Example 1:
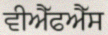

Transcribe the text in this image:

ਵੀਐੱਫਐੱਸ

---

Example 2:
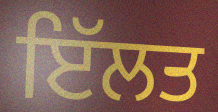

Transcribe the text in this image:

ਇੱਲਤ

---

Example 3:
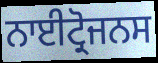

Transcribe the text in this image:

ਨਾਈਟ੍ਰੋਜਨਸ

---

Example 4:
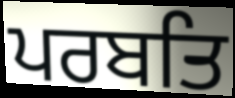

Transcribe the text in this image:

ਪਰਬਤਿ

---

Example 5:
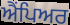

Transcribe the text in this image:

ਐਂਪਿਅਰ